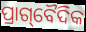
ପ୍ରାଗ୍‌ବୈଦିକ